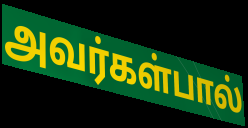
அவர்கள்பால்